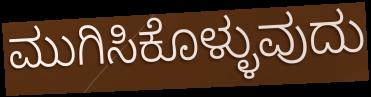
ಮುಗಿಸಿಕೊಳ್ಳುವುದು